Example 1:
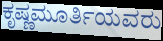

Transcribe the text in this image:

ಕೃಷ್ಣಮೂರ್ತಿಯವರು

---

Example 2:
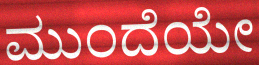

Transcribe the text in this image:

ಮುಂದೆಯೇ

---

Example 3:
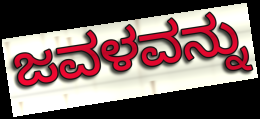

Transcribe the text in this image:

ಜವಳವನ್ನು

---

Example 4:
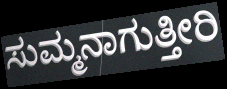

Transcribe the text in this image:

ಸುಮ್ಮನಾಗುತ್ತೀರಿ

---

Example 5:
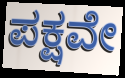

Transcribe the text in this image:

ಪಕ್ಷವೇ